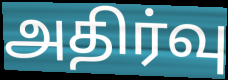
அதிர்வு